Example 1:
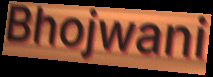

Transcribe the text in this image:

Bhojwani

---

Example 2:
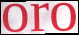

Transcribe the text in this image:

oro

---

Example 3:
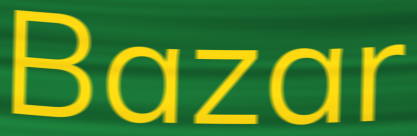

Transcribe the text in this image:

Bazar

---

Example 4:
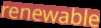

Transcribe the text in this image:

renewable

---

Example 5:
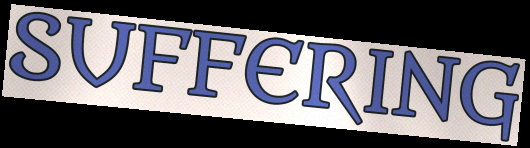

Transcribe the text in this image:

SUFFERING